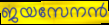
ജയസേനൻ